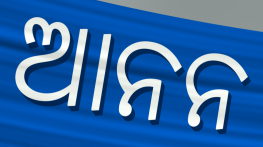
ଆନନ